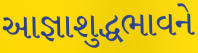
આજ્ઞાશુદ્ધભાવને